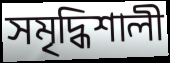
সমৃদ্ধিশালী